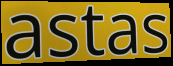
astas